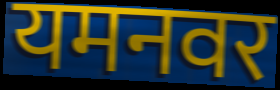
यमनवर